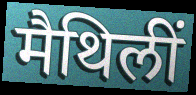
मैथिलीं